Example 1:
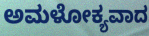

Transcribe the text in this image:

ಅಮಳೋಕ್ಯವಾದ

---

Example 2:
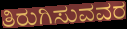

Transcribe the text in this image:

ತಿರುಗಿಸುವವರ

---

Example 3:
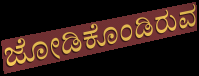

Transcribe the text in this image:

ಜೋಡಿಕೊಂಡಿರುವ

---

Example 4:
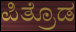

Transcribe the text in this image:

ಪಿತ್ರೊಡ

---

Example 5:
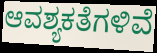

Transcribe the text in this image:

ಆವಶ್ಯಕತೆಗಳಿವೆ